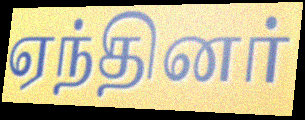
ஏந்தினர்